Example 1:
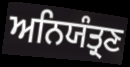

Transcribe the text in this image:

ਅਨਿਯੰਤ੍ਰਣ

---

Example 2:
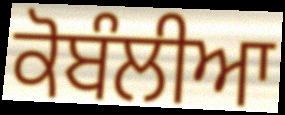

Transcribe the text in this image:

ਕੋਬੰਲੀਆ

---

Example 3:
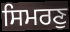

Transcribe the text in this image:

ਸਿਮਰਣੁ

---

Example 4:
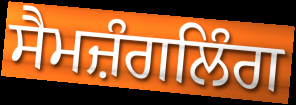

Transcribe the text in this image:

ਸੈਮਜ਼ੰਗਲਿੰਗ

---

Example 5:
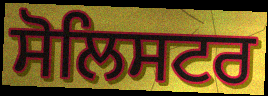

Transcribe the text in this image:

ਸੋਲਿਸਟਰ